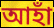
আহাঁ